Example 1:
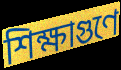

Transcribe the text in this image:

শিক্ষাগুণে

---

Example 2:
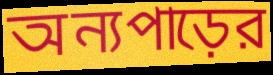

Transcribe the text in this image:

অন্যপাড়ের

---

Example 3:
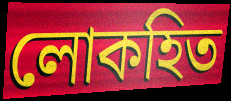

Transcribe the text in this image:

লোকহিত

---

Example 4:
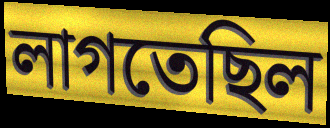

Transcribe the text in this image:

লাগতেছিল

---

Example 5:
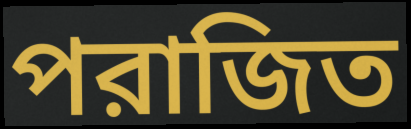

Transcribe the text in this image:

পরাজিত